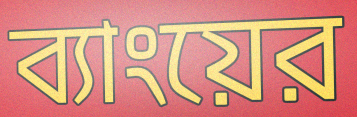
ব্যাংয়ের